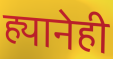
ह्यानेही